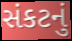
સંકટનું